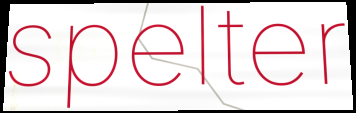
spelter